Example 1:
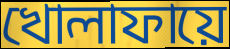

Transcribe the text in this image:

খোলাফায়ে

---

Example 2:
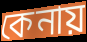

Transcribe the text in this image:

কেনায়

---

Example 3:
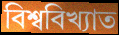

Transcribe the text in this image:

বিশ্ববিখ্যাত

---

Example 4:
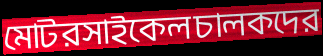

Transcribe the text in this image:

মোটরসাইকেলচালকদের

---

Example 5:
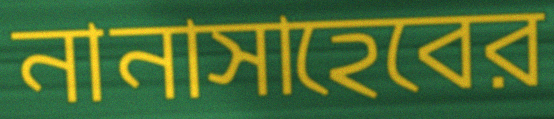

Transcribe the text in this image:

নানাসাহেবের